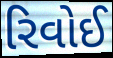
રિવોઈ